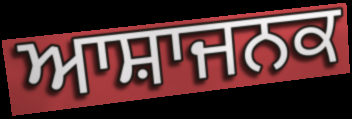
ਆਸ਼ਾਜਨਕ